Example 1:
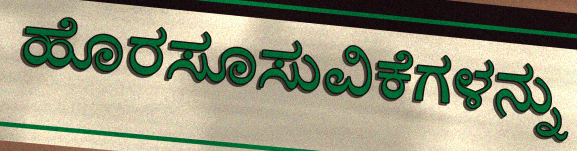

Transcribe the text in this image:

ಹೊರಸೂಸುವಿಕೆಗಳನ್ನು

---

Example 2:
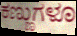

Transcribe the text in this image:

ಕಣ್ಣುಗಳೂ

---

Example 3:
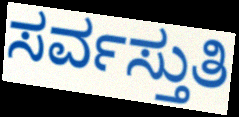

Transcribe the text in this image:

ಸರ್ವಸ್ತುತಿ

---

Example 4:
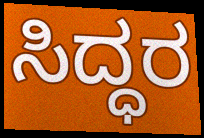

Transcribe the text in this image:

ಸಿದ್ಧರ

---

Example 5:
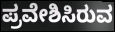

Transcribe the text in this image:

ಪ್ರವೇಶಿಸಿರುವ